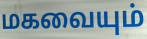
மகவையும்